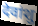
देवांशु